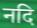
नदि